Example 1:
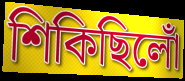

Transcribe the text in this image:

শিকিছিলোঁ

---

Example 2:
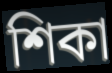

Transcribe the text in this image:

শিকা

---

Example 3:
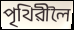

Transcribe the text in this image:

পৃথিৱীলৈ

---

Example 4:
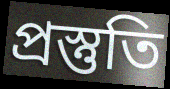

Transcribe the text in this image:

প্ৰস্তুতি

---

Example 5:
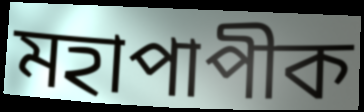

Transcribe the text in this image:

মহাপাপীক